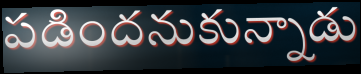
పడిందనుకున్నాడు